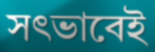
সৎভাবেই